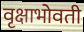
वृक्षाभोवती